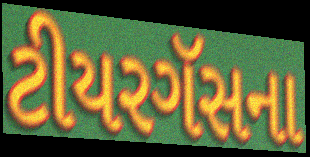
ટીયરગૅસના